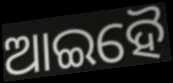
ଆଇହୈ